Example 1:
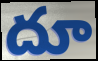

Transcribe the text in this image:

దూ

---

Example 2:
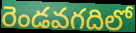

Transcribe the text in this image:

రెండవగదిలో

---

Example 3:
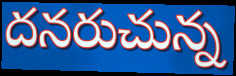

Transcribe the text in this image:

దనరుచున్న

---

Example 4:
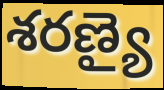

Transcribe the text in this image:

శరణ్యై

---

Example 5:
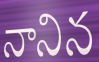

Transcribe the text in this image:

నానిన